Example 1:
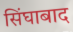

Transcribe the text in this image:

सिंघाबाद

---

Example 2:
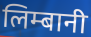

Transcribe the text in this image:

लिम्बानी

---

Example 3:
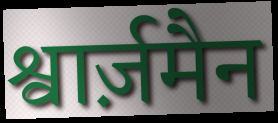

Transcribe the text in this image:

श्वार्ज़मैन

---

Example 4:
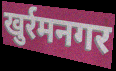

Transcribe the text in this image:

खुर्रमनगर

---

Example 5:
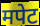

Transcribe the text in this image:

मपेट